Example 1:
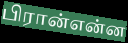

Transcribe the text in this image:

பிரான்என்ன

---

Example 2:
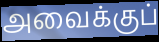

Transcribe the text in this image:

அவைக்குப்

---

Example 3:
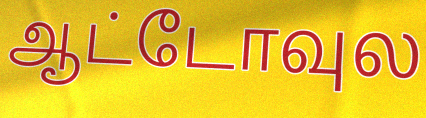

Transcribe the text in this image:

ஆட்டோவுல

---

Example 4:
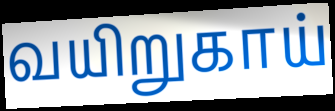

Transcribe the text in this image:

வயிறுகாய்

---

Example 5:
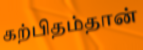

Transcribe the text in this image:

கற்பிதம்தான்